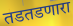
तडतडणारा